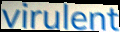
virulent